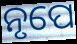
ନୃପେ